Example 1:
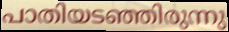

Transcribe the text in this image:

പാതിയടഞ്ഞിരുന്നു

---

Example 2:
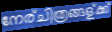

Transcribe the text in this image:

നേര്ചിത്രങ്ങള്ക്ക്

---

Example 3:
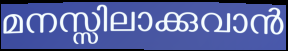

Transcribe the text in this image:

മനസ്സിലാക്കുവാൻ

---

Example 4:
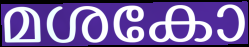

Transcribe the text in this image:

മശകോ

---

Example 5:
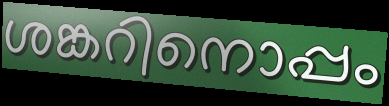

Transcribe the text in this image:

ശങ്കറിനൊപ്പം